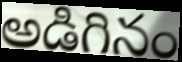
అడిగినం